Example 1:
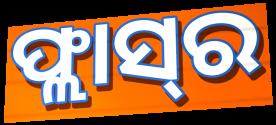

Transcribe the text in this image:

ଫ୍ଲାସ୍‌ର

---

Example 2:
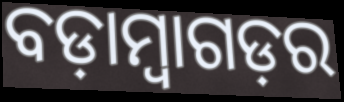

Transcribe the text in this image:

ବଡ଼ାମ୍ବାଗଡ଼ର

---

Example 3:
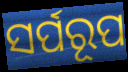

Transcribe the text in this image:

ସର୍ପରୂପ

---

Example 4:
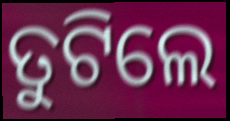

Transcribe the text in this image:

ତୁଟିଲେ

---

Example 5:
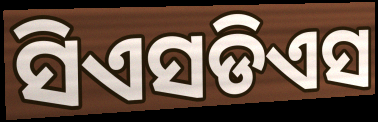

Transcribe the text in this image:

ସିଏସଡିଏସ